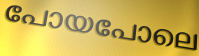
പോയപോലെ